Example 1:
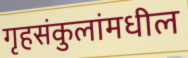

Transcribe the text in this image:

गृहसंकुलांमधील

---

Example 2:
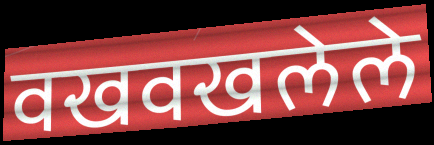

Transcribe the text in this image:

वखवखलेले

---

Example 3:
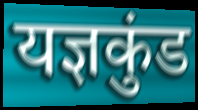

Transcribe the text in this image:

यज्ञकुंड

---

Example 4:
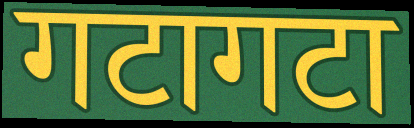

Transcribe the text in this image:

गटागटा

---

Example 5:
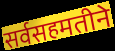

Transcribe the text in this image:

सर्वसहमतीने